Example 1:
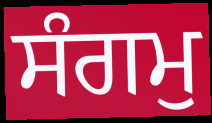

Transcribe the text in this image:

ਸੰਗਮੁ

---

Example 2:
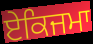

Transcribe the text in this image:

ਏਕਿਜਮਾ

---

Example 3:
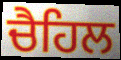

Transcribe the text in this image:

ਚੈਹਿਲ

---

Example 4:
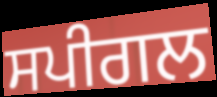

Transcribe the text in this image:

ਸਪੀਗਲ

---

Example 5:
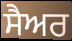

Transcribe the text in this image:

ਸੈਅਰ